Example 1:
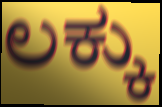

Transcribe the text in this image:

ಲಕ್ಕು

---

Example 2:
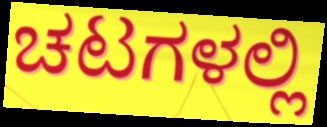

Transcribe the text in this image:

ಚಟಗಳಲ್ಲಿ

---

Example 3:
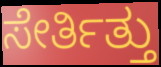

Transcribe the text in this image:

ಸೇರ್ತಿತ್ತು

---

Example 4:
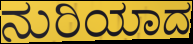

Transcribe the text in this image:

ನುರಿಯಾದ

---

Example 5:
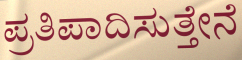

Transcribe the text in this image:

ಪ್ರತಿಪಾದಿಸುತ್ತೇನೆ